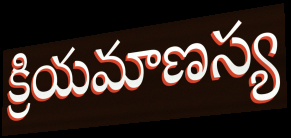
క్రియమాణస్య